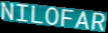
NILOFAR